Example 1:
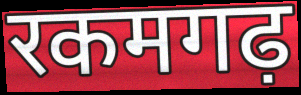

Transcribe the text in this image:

रकमगढ़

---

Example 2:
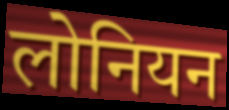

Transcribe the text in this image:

लोनियन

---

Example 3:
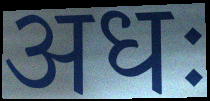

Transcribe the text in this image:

अधः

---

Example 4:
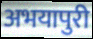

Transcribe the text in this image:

अभयापुरी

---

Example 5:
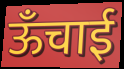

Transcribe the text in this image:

ऊँचाई